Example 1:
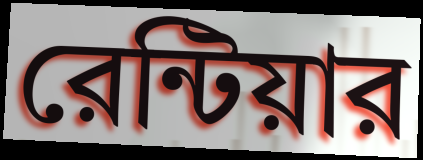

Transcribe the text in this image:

রেন্টিয়ার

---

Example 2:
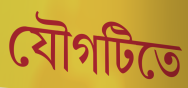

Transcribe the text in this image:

যৌগটিতে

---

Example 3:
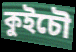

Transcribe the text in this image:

কুইচৌ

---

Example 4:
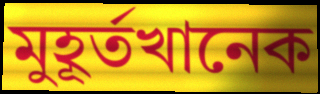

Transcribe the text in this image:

মুহূর্তখানেক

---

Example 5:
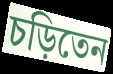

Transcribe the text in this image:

চড়িতেন